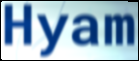
Hyam